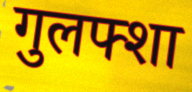
गुलफ्शा